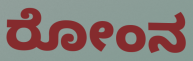
ರೋಂನ